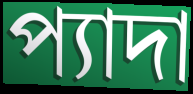
প্যাদা